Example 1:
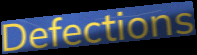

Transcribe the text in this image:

Defections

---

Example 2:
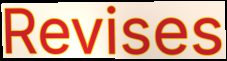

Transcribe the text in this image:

Revises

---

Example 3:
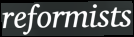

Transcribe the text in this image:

reformists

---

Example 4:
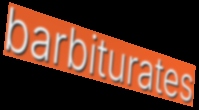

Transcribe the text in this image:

barbiturates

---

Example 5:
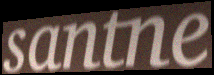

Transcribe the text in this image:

santne